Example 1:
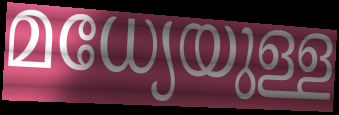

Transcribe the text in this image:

മധ്യേയുള്ള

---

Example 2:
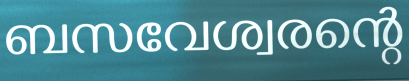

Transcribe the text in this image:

ബസവേശ്വരന്റെ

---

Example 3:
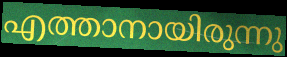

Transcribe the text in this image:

എത്താനായിരുന്നു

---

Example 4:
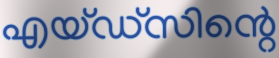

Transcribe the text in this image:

എയ്ഡ്സിന്റെ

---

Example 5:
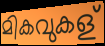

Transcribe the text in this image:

മികവുകള്